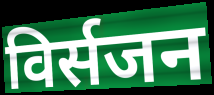
विर्सजन